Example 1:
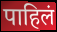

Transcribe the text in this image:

पाहिलं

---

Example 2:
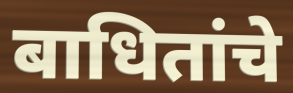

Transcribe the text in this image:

बाधितांचे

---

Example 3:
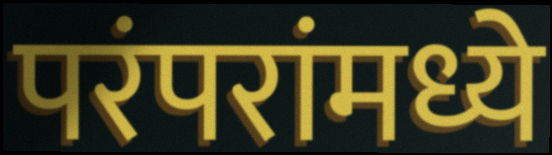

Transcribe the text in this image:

परंपरांमध्ये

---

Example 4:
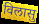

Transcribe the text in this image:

विलासु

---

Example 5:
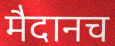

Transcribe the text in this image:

मैदानच